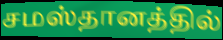
சமஸ்தானத்தில்